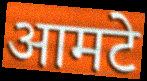
आमटे